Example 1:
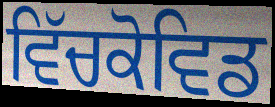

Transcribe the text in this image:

ਵਿੱਚਕੋਵਿਡ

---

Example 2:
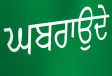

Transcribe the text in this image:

ਘਬਰਾਉਦੇ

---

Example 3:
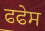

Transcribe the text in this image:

ਫਫੇਸ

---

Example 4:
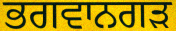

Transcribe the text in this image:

ਭਗਵਾਨਗੜ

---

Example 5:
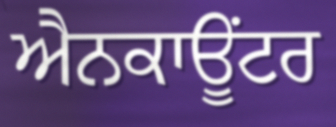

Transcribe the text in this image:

ਐਨਕਾਊਂਟਰ